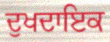
ਦੁਖਦਾਇਕ